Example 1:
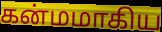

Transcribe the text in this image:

கன்மமாகிய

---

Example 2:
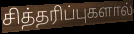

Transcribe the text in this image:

சித்தரிப்புகளால்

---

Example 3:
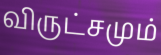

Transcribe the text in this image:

விருட்சமும்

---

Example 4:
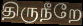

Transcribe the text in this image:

திருநீறே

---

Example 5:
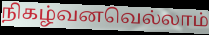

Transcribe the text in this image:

நிகழ்வனவெல்லாம்